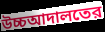
উচ্চআদালতের